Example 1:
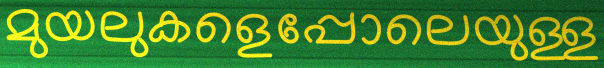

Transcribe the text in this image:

മുയലുകളെപ്പോലെയുള്ള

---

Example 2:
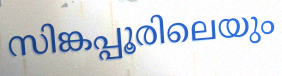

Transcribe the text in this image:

സിങ്കപ്പൂരിലെയും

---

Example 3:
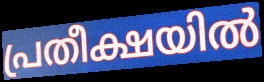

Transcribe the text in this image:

പ്രതീക്ഷയിൽ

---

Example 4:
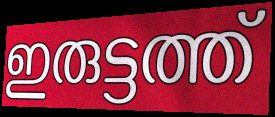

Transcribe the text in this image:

ഇരുട്ടത്ത്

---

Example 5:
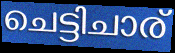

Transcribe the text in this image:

ചെട്ടിചാര്